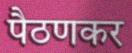
पैठणकर